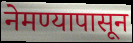
नेमण्यापासून